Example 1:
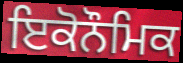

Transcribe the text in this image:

ਇਕੋਨੌਮਿਕ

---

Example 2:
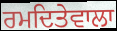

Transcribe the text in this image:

ਰਮਦਿਤੇਵਾਲਾ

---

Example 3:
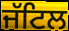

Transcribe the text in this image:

ਜੱਟਿਲ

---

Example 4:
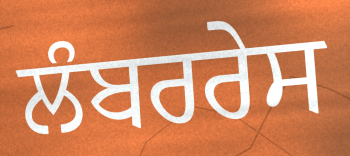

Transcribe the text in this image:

ਲੰਬਰਰੇਸ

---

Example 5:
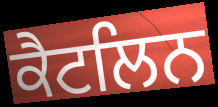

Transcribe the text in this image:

ਕੈਟਲਿਨ